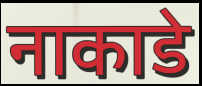
नाकाडे